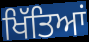
ਖਿੱਤਿਆਂ